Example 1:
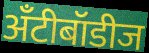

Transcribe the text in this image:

अँटीबॉडीज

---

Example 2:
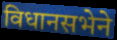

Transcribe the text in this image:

विधानसभेने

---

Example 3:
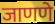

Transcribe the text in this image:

जाणणे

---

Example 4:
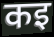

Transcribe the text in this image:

कइ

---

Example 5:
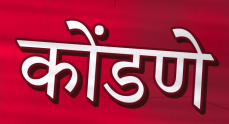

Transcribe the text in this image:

कोंडणे